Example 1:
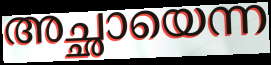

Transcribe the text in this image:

അച്ഛായെന്ന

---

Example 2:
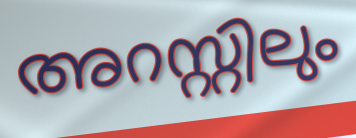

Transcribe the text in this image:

അറസ്റ്റിലും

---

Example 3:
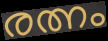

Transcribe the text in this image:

രത്നം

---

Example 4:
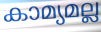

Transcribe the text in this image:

കാമ്യമല്ല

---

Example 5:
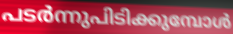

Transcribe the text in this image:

പടർന്നുപിടിക്കുമ്പോൾ